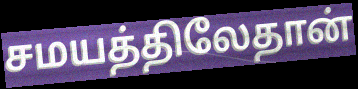
சமயத்திலேதான்